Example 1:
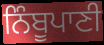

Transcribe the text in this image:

ਨਿੰਬੂਪਾਣੀ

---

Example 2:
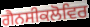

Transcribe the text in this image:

ਗੈਨਸੀਕਲੋਵਿਰ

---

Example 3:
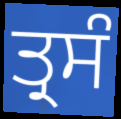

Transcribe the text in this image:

ਤ੍ਰਸੰ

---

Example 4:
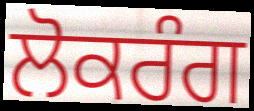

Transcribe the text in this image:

ਲੋਕਰੰਗ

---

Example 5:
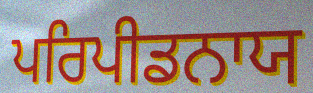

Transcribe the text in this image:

ਪਰਿਪੀਡਨਾਯ